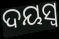
ଦୟସ୍ଵ